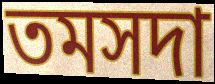
তমসদা